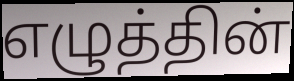
எழுத்தின்